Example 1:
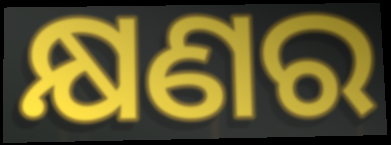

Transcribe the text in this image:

କ୍ଷଣର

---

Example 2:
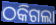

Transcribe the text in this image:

ଠକିଗଲା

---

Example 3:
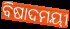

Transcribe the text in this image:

ବିଷାଦମୟୀ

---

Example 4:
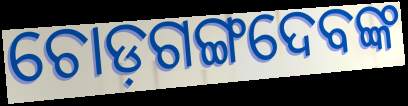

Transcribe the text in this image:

ଚୋଡ଼ଗଙ୍ଗଦେବଙ୍କ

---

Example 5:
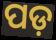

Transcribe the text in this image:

ପଡ଼